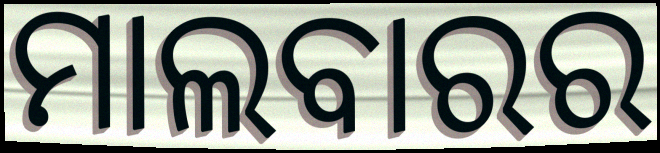
ମାଲବାରର